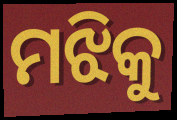
ମଝିକୁ